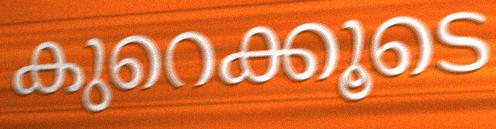
കുറെക്കൂടെ